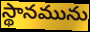
స్థానమును